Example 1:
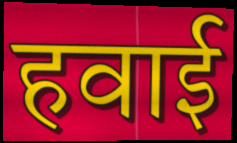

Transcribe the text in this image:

हवाई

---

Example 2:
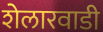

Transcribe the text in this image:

शेलारवाडी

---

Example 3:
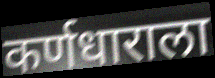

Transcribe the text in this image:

कर्णधाराला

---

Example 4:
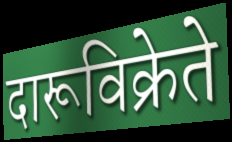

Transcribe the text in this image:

दारूविक्रेते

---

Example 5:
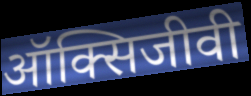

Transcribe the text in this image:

ऑक्सिजीवी